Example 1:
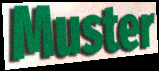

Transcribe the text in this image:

Muster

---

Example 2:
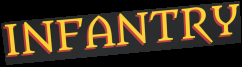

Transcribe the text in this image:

INFANTRY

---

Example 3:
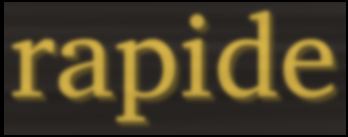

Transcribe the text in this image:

rapide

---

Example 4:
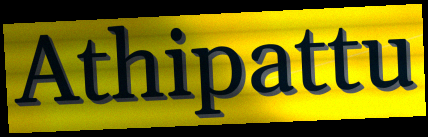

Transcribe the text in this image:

Athipattu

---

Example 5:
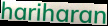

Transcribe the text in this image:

hariharan